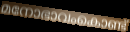
മനോഭാവംകൊണ്ട്